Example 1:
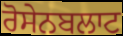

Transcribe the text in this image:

ਰੋਸੇਨਬਲਾਟ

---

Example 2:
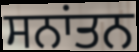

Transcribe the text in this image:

ਸਨਾਂਤਨ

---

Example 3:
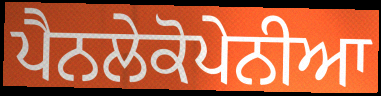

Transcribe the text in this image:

ਪੈਨਲੇਕੋਪੇਨੀਆ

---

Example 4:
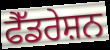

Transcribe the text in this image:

ਫੈੱਡਰੇਸ਼ਨ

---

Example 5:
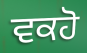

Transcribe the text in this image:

ਵਕਹੋ